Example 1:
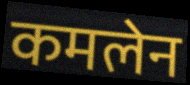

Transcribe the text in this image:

कमलेन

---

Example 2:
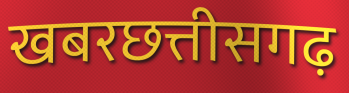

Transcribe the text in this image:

खबरछत्तीसगढ़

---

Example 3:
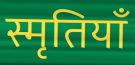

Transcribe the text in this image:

स्मृतियाँ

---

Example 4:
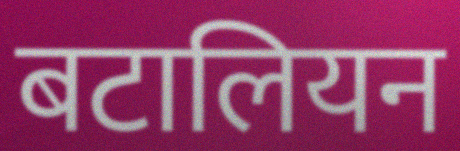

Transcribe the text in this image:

बटालियन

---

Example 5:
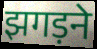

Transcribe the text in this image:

झगड़ने